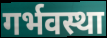
गर्भवस्था